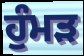
ਹੁੰਮੜ